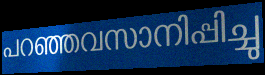
പറഞ്ഞവസാനിപ്പിച്ചു